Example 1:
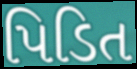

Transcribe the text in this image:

પિડિત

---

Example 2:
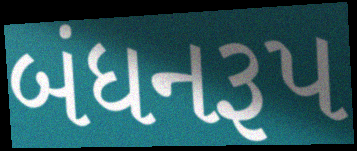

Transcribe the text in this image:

બંધનરૂપ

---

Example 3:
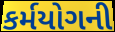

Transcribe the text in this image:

કર્મયોગની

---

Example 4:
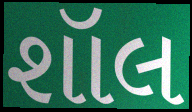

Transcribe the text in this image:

શૉલ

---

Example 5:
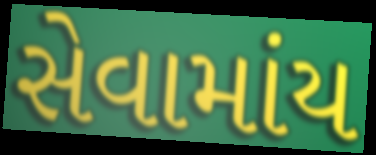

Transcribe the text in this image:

સેવામાંય